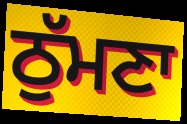
ਠੁੱਮਣਾ